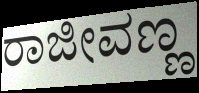
ರಾಜೀವಣ್ಣ